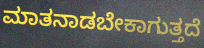
ಮಾತನಾಡಬೇಕಾಗುತ್ತದೆ